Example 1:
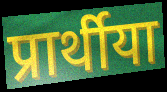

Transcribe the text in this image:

प्रार्थीया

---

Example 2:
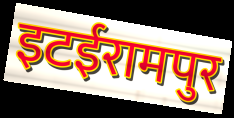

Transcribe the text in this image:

इटईरामपुर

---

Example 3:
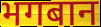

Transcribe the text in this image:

भगबान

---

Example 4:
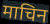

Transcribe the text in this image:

माचिन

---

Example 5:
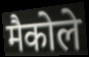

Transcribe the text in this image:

मैकोले